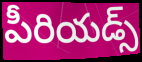
పీరియడ్స్